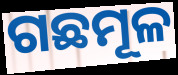
ଗଛମୂଳ